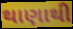
થાણાથી